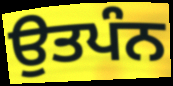
ਉਤਪੰਨ